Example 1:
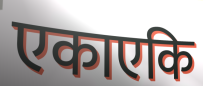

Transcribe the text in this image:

एकाएकि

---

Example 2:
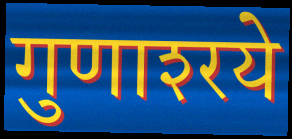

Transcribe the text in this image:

गुणाश्रये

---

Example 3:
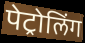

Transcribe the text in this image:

पेट्रोलिंग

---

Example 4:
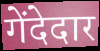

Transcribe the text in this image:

गेंदेदार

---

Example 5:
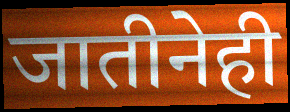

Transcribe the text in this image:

जातीनेही